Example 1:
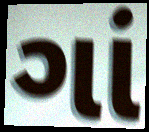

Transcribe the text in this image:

ગાં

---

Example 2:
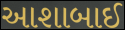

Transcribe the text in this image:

આશાબાઈ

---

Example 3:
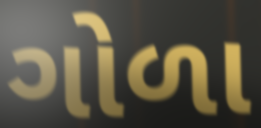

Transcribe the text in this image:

ગોળા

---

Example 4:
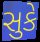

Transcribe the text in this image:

સુકે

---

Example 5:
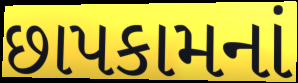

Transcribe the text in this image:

છાપકામનાં